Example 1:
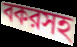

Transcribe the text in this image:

বকরসহ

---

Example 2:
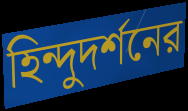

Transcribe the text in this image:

হিন্দুদর্শনের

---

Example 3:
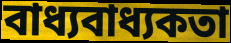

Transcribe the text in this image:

বাধ্যবাধ্যকতা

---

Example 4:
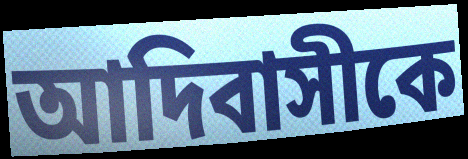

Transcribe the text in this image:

আদিবাসীকে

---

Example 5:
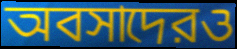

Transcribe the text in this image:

অবসাদেরও